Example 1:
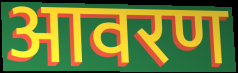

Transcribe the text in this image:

आवरण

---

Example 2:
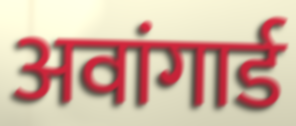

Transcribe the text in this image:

अवांगार्ड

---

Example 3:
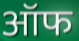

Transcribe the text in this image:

ऑफ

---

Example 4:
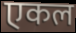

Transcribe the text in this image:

एकल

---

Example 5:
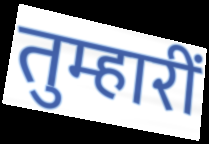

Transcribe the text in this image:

तुम्हारीं